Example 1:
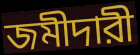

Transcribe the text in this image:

জমীদারী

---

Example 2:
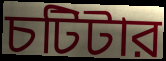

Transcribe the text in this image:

চটিটার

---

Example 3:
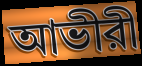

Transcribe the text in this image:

আভীরী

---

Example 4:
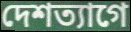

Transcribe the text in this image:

দেশত্যাগে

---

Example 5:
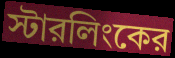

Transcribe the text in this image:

স্টারলিংকের